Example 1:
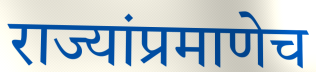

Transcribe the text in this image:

राज्यांप्रमाणेच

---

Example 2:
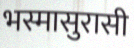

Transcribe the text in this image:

भस्मासुरासी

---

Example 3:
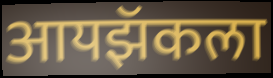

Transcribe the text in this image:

आयझॅकला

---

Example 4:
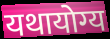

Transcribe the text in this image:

यथायोग्य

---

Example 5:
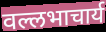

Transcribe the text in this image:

वल्लभाचार्य